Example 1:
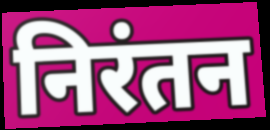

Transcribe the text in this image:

निरंतन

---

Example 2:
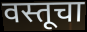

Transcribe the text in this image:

वस्तूचा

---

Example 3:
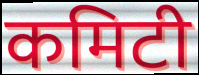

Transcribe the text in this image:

कमिटी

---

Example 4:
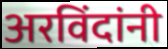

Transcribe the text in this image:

अरविंदांनी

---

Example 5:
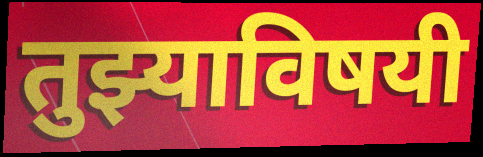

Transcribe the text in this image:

तुझ्याविषयी